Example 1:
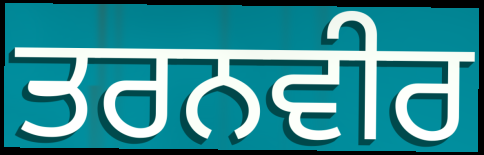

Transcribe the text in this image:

ਤਰਨਵੀਰ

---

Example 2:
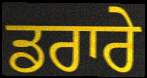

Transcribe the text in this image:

ਡਰਾਰੇ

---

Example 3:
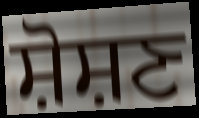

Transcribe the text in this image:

ਸ਼ੋਸ਼ਣ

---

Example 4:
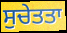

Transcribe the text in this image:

ਸੁਚੇਤਤਾ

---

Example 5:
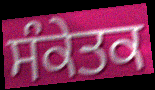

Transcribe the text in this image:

ਸੰਕੇਤਕ